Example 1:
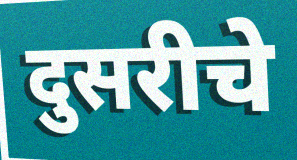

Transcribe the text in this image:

दुसरीचे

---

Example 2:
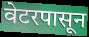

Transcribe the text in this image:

वेटरपासून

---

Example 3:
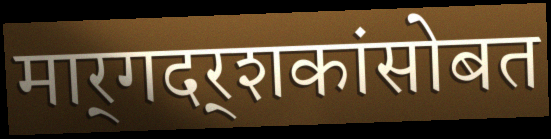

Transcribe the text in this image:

मार्गदर्शकांसोबत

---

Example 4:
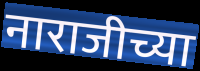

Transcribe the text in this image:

नाराजीच्या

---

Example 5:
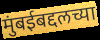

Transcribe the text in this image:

मुंबईबद्दलच्या